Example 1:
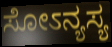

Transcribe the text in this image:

ಸೋಽನ್ಯಸ್ಯ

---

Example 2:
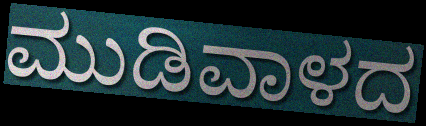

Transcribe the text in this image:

ಮುಡಿವಾಳದ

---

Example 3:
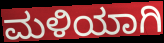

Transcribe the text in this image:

ಮಳಿಯಾಗಿ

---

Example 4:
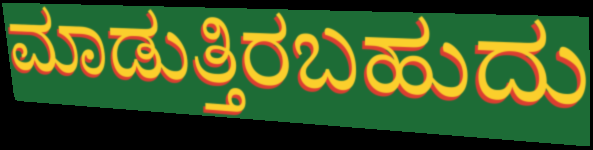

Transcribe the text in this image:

ಮಾಡುತ್ತಿರಬಹುದು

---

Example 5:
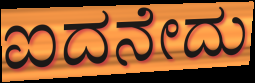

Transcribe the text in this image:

ಐದನೇದು